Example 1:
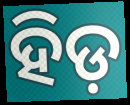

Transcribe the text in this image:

ହିଡ଼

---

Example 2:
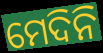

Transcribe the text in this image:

ମେଦିନି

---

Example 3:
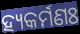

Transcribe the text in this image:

ହ୍ୟକର୍ମଣଃ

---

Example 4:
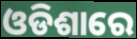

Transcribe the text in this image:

ଓଡିଶାରେ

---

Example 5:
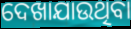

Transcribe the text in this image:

ଦେଖାଯାଉଥିବା